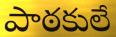
పాఠకులే